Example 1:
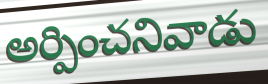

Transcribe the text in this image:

అర్పించనివాడు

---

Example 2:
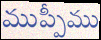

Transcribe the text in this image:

ముప్పీము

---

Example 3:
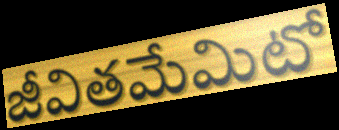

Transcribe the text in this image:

జీవితమేమిటో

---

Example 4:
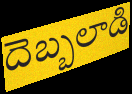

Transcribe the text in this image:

దెబ్బలాడి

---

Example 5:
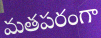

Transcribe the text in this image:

మతపరంగా